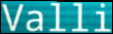
Valli